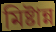
মিষ্টান্ন